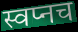
स्वप्नच